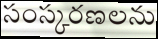
సంస్కరణలను